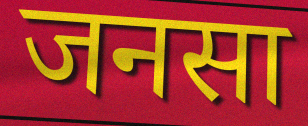
जनसा